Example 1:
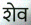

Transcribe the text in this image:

शेव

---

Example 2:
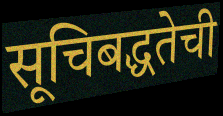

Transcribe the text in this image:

सूचिबद्धतेची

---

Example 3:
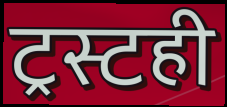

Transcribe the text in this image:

ट्रस्टही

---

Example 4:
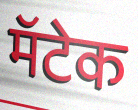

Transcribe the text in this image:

मॅटेक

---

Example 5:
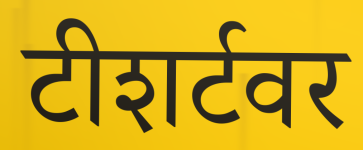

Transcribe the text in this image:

टीशर्टवर